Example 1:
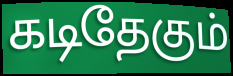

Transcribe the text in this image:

கடிதேகும்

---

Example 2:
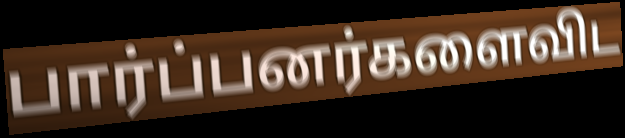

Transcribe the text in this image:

பார்ப்பனர்களைவிட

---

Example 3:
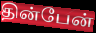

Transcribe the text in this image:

தின்பேன்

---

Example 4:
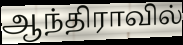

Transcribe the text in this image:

ஆந்திராவில்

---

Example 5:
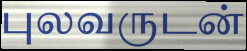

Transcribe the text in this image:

புலவருடன்